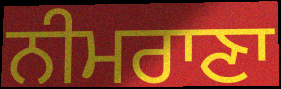
ਨੀਮਰਾਣਾ